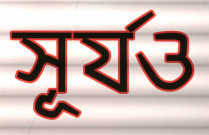
সূর্যও